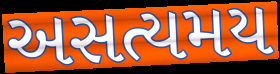
અસત્યમય